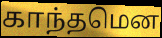
காந்தமென